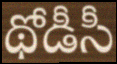
థోడీసీ